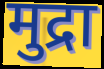
मुद्रा